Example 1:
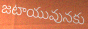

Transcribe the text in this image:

జటాయువునకు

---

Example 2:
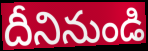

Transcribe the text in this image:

దీనినుండి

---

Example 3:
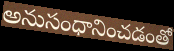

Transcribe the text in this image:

అనుసంధానించడంతో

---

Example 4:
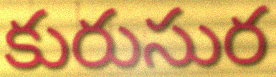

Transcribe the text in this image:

కురుసుర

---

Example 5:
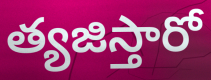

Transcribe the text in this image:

త్యజిస్తారో